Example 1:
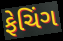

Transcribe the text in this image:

ફેચિંગ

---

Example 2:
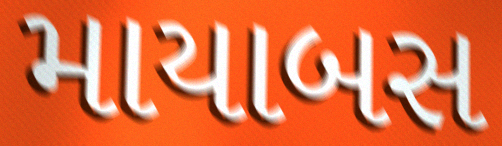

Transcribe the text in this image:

માયાબસ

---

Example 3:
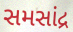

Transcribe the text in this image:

સમસાંદ્ર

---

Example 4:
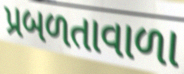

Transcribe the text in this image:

પ્રબળતાવાળા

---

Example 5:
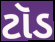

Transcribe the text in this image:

ટૉડ